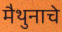
मैथुनाचे